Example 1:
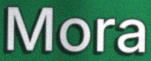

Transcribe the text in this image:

Mora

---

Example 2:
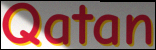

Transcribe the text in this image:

Qatan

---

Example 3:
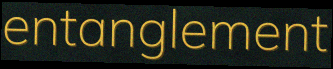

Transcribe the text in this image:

entanglement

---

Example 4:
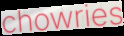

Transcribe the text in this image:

chowries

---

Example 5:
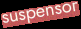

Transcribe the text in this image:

suspensor